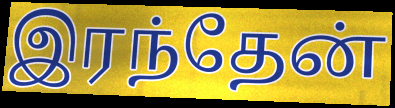
இரந்தேன்